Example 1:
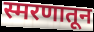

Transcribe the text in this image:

स्मरणातून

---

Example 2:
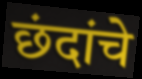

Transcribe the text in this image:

छंदांचे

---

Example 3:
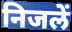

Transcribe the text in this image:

निजलें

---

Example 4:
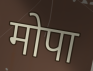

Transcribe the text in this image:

मोपा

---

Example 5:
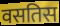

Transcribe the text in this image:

वसतिस